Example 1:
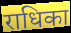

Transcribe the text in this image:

राधिका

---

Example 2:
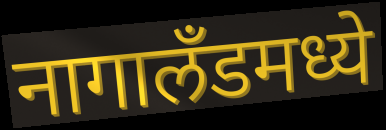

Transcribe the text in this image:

नागालॅंडमध्ये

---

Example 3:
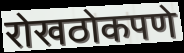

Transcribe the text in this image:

रोखठोकपणे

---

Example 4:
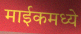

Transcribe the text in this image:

माईकमध्ये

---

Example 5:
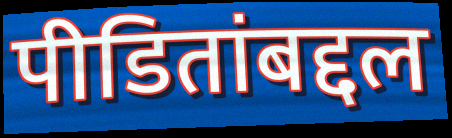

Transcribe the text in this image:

पीडितांबद्दल